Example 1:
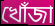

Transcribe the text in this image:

খোঁজা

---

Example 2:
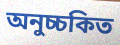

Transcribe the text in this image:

অনুচ্চকিত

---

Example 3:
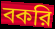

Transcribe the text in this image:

বকরি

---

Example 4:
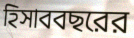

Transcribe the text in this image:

হিসাববছরের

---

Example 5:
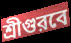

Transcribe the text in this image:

শ্রীগুরবে